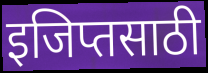
इजिप्तसाठी